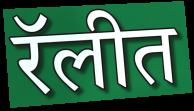
रॅलीत